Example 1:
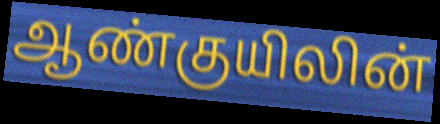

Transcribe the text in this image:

ஆண்குயிலின்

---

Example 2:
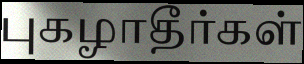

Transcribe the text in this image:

புகழாதீர்கள்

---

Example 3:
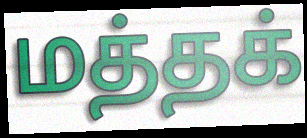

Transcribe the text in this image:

மத்தக்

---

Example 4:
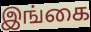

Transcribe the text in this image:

இங்கை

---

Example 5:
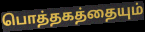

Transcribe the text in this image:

பொத்தகத்தையும்